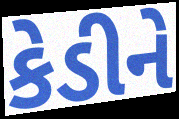
કેડીને